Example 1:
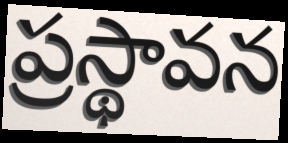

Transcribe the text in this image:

ప్రస్థావన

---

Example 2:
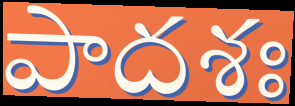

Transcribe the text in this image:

పాదశః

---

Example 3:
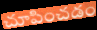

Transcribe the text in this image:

చూపించడం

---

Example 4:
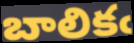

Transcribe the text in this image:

బాలికఁ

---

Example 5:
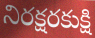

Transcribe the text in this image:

నిరక్షరకుక్షి